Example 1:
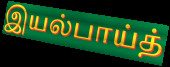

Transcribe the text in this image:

இயல்பாய்த்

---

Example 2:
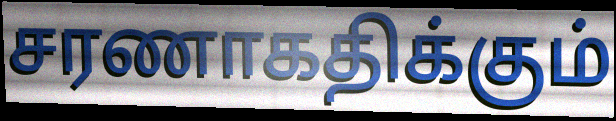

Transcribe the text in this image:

சரணாகதிக்கும்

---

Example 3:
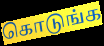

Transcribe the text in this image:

கொடுங்க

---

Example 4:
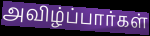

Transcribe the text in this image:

அவிழ்ப்பார்கள்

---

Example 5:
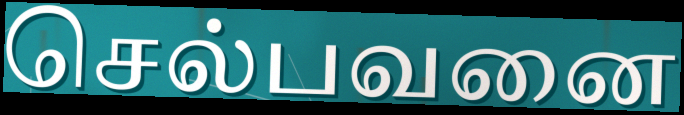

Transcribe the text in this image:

செல்பவனை